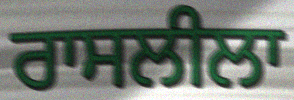
ਰਾਸਲੀਲਾ